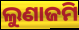
ଲୁଣାଜମି